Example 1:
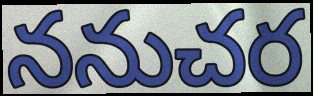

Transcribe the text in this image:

ననుచర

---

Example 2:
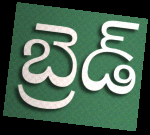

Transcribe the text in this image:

బ్రెడ్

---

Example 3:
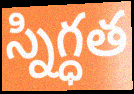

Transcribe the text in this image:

స్నిగ్ధత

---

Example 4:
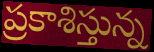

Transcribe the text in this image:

ప్రకాశిస్తున్న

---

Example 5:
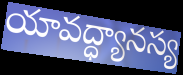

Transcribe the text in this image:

యావద్ధ్యానస్య